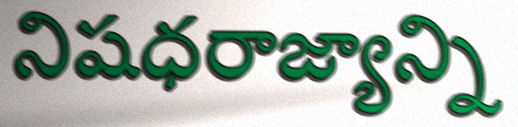
నిషధరాజ్యాన్ని